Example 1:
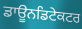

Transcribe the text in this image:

ਡਾਊਨਡਿਟੇਕਟਰ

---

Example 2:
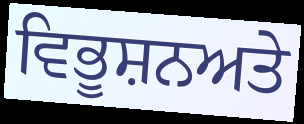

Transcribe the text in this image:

ਵਿਭੂਸ਼ਨਅਤੇ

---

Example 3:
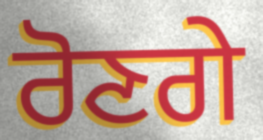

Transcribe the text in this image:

ਰੋਣਗੇ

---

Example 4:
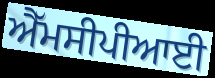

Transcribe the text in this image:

ਐੱਮਸੀਪੀਆਈ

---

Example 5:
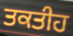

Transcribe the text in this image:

ਤਕਤੀਹ